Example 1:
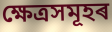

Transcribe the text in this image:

ক্ষেত্ৰসমূহৰ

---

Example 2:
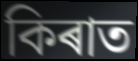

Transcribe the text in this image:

কিৰাত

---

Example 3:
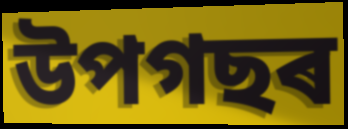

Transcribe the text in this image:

উপগছৰ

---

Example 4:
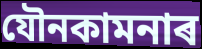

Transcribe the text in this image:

যৌনকামনাৰ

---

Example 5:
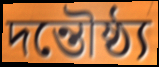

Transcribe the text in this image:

দন্তৌষ্ঠ্য